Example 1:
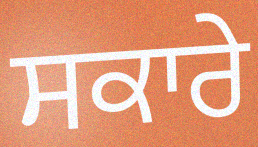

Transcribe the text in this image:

ਸਕਾਰੇ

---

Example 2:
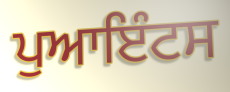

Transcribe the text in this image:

ਪੁਆਇੰਟਸ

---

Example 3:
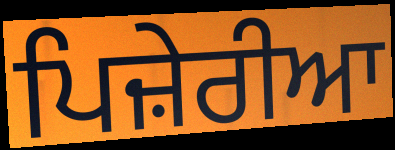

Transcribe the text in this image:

ਪਿਜ਼ੇਰੀਆ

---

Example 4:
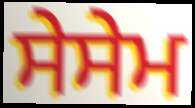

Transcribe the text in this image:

ਸੇਸੇਮ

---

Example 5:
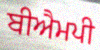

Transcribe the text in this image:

ਬੀਐਮਪੀ